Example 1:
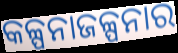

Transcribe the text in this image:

କଳ୍ପନାଜଳ୍ପନାର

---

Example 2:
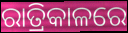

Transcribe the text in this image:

ରାତ୍ରିକାଳରେ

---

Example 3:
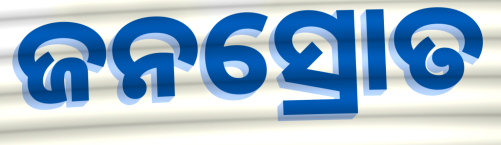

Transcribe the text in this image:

ଜନସ୍ରୋତ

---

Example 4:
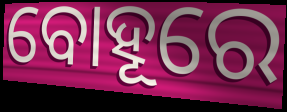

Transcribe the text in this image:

ବୋହୂରେ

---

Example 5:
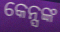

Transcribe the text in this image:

କେନ୍ସଙ୍କ